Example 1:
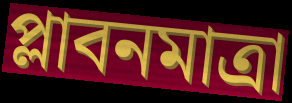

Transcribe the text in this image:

প্লাবনমাত্রা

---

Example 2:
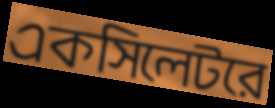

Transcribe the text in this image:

একসিলেটরে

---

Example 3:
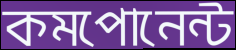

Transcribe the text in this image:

কমপোনেন্ট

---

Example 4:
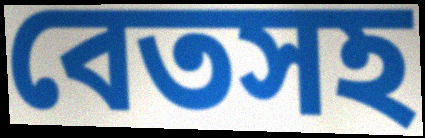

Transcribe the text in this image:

বেতসহ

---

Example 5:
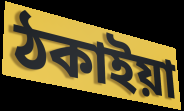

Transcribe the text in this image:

ঠকাইয়া